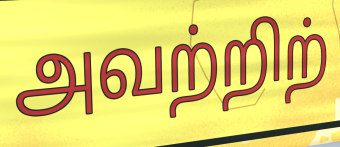
அவற்றிற்